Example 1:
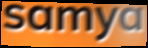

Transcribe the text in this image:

samya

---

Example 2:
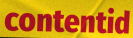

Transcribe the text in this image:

contentid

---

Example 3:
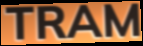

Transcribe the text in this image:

TRAM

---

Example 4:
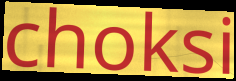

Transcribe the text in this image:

choksi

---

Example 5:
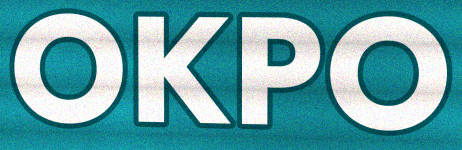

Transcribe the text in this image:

OKPO